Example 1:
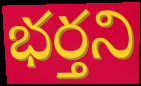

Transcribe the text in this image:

భర్తని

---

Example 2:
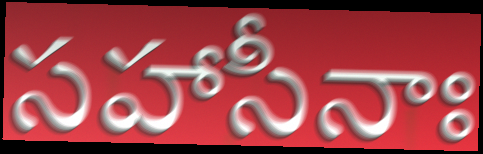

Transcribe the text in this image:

సహాసీనాః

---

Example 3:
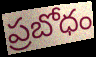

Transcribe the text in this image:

ప్రబోధం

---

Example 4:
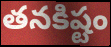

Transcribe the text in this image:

తనకిష్టం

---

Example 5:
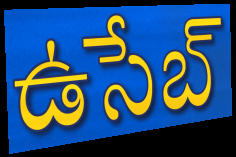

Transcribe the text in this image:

ఉసేబ్